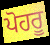
ਪੋਹਰੂ